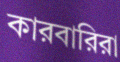
কারবারিরা